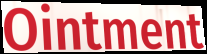
Ointment